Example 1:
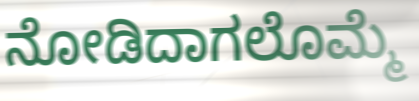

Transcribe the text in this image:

ನೋಡಿದಾಗಲೊಮ್ಮೆ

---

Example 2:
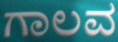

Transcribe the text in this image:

ಗಾಲವ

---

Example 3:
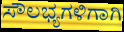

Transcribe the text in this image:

ಸೌಲಭ್ಯಗಳಿಗಾಗಿ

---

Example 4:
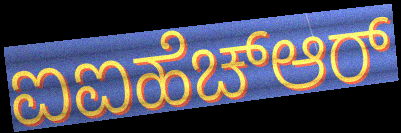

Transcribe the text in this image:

ಐಐಹೆಚ್ಆರ್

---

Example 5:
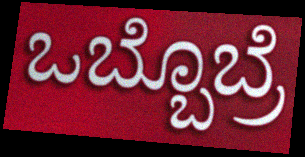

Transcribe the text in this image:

ಒಬ್ಬೊಬ್ರೆ